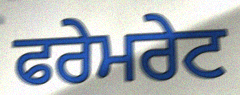
ਫਰੇਮਰੇਟ